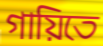
গায়িতে